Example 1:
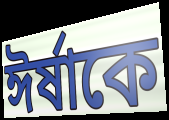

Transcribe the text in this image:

ঈর্ষাকে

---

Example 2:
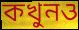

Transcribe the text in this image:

কখুনও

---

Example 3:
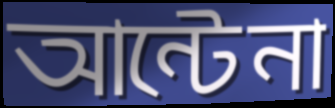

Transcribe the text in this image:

আন্টেনা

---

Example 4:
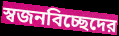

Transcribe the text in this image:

স্বজনবিচ্ছেদের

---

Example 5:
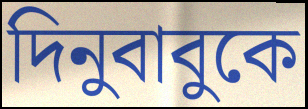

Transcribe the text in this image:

দিনুবাবুকে